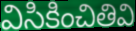
విసికించితివి